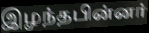
இழந்தபின்னர்